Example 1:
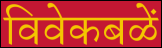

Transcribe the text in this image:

विवेकबळें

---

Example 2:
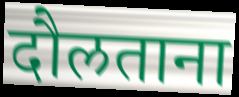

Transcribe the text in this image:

दौलताना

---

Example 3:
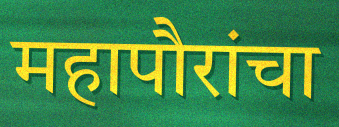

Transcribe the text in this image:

महापौरांचा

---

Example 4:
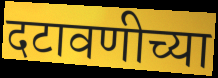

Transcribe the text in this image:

दटावणीच्या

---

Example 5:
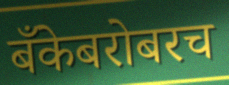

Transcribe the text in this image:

बँकेबरोबरच